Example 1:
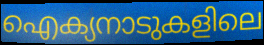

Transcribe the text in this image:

ഐക്യനാടുകളിലെ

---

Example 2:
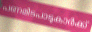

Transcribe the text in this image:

പണമിടപാടുകാർക്ക്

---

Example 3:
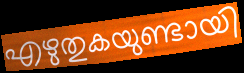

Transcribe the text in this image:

എഴുതുകയുണ്ടായി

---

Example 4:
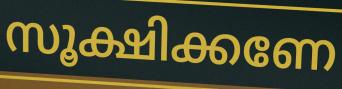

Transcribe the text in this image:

സൂക്ഷിക്കണേ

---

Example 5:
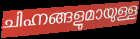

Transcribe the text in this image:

ചിഹ്നങ്ങളുമായുള്ള